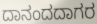
ದಾನಂದದಾಗರ